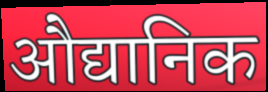
औद्यानिक